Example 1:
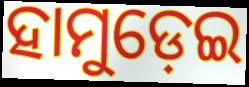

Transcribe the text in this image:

ହାମୁଡ଼େଇ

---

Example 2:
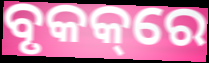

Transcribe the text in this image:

ବୃକକ୍‌ରେ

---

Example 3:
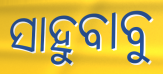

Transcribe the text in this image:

ସାହୁବାବୁ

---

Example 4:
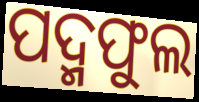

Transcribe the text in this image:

ପଦ୍ମଫୁଲ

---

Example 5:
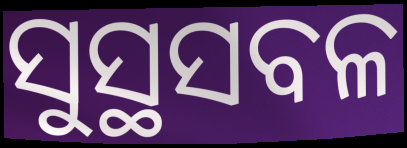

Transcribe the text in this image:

ସୁସ୍ଥସବଳ